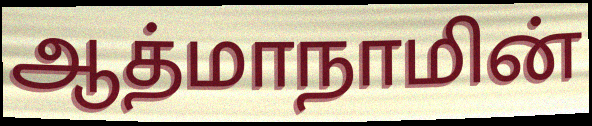
ஆத்மாநாமின்